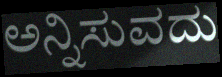
ಅನ್ನಿಸುವದು